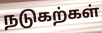
நடுகற்கள்